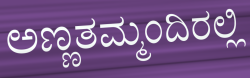
ಅಣ್ಣತಮ್ಮಂದಿರಲ್ಲಿ